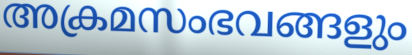
അക്രമസംഭവങ്ങളും